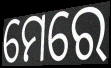
ମେରେ